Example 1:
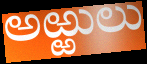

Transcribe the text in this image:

అఱ్ఱులు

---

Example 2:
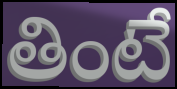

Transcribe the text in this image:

తింటే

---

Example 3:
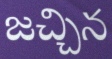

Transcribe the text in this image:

జచ్చిన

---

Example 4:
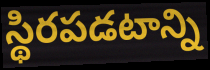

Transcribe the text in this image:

స్థిరపడటాన్ని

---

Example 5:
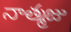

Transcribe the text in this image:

నాత్మజు